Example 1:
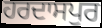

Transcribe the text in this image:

ਹਰਦਾਸਪੁਰ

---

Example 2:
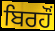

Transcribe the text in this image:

ਬਿਰਹੌਂ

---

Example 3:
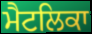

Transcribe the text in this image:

ਮੈਟਲਿਕਾ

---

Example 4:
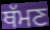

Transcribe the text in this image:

ਥੱਮਣ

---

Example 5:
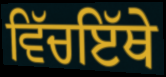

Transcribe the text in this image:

ਵਿੱਚਇੱਥੇ